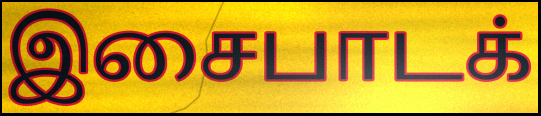
இசைபாடக்